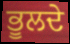
ਭੂਲਦੇ